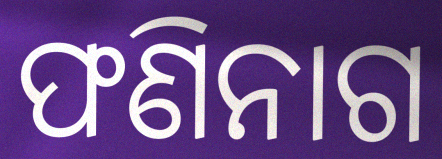
ଫଣିନାଗ